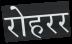
रोहरर